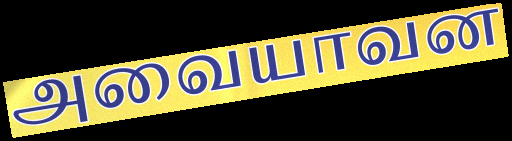
அவையாவன